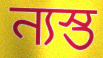
ন্যস্ত